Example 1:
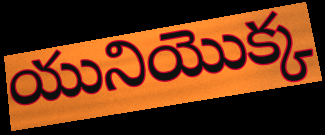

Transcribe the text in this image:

యునియొక్క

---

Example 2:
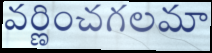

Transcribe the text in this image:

వర్ణించగలమా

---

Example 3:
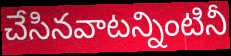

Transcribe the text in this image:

చేసినవాటన్నింటినీ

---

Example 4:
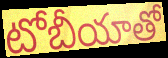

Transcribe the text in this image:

టోబీయాతో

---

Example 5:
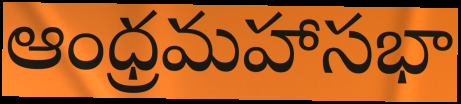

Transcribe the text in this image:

ఆంధ్రమహాసభా